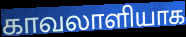
காவலாளியாக